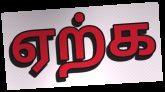
ஏற்க